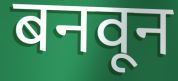
बनवून